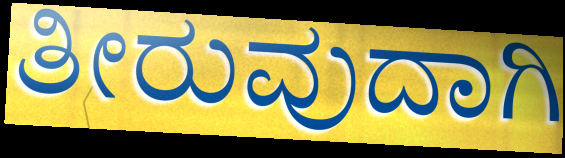
ತೀರುವುದಾಗಿ